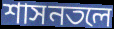
শাসনতলে